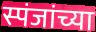
स्पंजांच्या